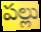
పల్లు